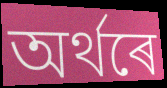
অৰ্থৰে